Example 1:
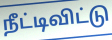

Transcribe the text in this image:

நீட்டிவிட்டு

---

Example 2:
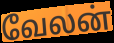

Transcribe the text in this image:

வேலன்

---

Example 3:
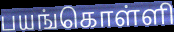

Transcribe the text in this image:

பயங்கொள்ளி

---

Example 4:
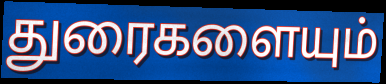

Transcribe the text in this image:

துரைகளையும்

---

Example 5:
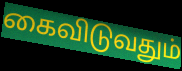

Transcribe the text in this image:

கைவிடுவதும்